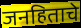
जनहिताचे